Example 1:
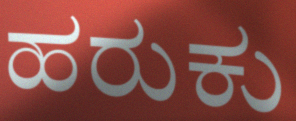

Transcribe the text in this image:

ಹರುಕು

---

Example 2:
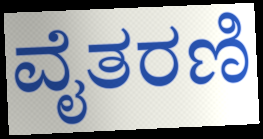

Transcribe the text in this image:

ವೈತರಣಿ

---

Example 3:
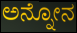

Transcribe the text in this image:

ಅನ್ನೋನ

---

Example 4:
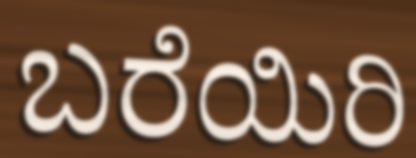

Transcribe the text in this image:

ಬರೆಯಿರಿ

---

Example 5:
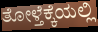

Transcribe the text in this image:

ತೋಳ್ತೆಕ್ಕೆಯಲ್ಲಿ